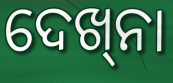
ଦେଖ୍‌ନା